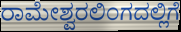
ರಾಮೇಶ್ವರಲಿಂಗದಲ್ಲಿಗೆ